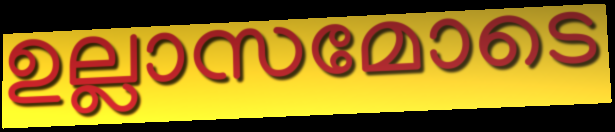
ഉല്ലാസമോടെ